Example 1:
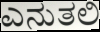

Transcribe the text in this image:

ಎನುತಲಿ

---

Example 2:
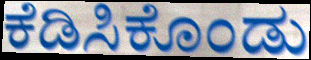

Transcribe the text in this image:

ಕೆಡಿಸಿಕೊಂಡು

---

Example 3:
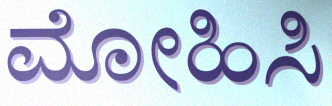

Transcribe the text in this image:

ಮೋಹಿಸಿ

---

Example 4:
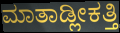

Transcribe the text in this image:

ಮಾತಾಡ್ಲೀಕತ್ತಿ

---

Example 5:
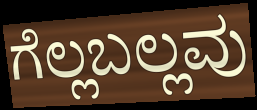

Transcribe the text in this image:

ಗೆಲ್ಲಬಲ್ಲವು